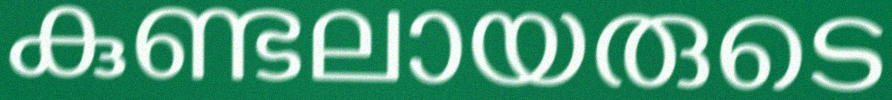
കുണ്ടലായരുടെ